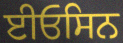
ਈਓਸਿਨ